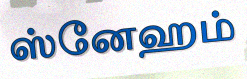
ஸ்னேஹம்